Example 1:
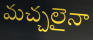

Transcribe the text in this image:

మచ్చలైనా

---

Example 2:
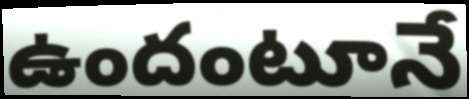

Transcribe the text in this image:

ఉందంటూనే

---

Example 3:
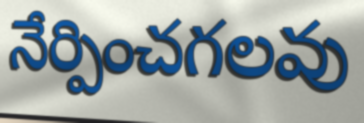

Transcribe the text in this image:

నేర్పించగలవు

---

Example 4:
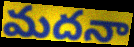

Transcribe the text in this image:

మదనా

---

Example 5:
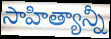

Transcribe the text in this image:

సాహిత్యాన్నీ